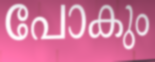
പോകും